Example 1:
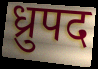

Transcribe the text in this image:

ध्रुपद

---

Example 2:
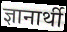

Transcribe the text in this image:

ज्ञानार्थी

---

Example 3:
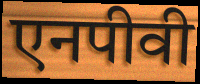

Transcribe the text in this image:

एनपीवी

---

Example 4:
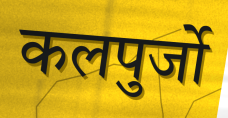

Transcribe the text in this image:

कलपुर्जो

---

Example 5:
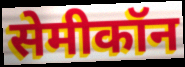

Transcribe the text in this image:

सेमीकॉन